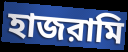
হাজরামি